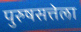
पुरुषसत्तेला